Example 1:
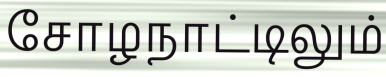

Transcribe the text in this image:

சோழநாட்டிலும்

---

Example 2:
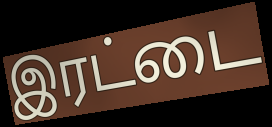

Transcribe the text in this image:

இரட்டை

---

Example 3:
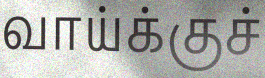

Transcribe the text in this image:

வாய்க்குச்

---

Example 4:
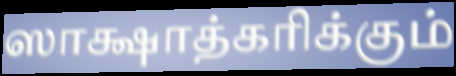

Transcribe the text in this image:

ஸாக்ஷாத்கரிக்கும்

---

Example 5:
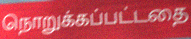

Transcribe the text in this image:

நொறுக்கப்பட்டதை